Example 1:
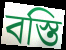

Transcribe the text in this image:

বস্তি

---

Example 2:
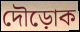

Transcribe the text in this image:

দৌড়োক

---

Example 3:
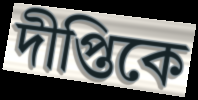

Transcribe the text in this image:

দীপ্তিকে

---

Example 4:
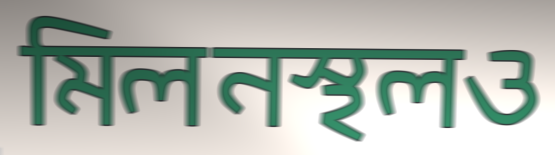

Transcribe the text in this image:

মিলনস্থলও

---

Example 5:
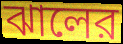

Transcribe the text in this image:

ঝালের